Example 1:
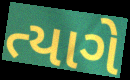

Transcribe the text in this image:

ત્યાગે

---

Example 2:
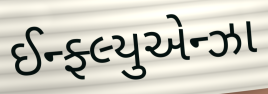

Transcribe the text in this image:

ઈન્ફ્લ્યુએન્ઝા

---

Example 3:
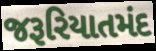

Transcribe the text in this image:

જરૂરિયાતમંદ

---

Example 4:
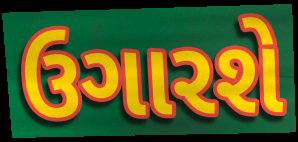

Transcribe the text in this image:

ઉગારશે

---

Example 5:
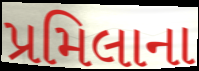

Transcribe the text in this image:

પ્રમિલાના